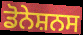
ਡੋਨੇਸ਼ਨਸ